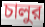
চালুর